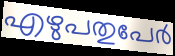
എഴുപതുപേർ